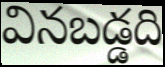
వినబడ్డది